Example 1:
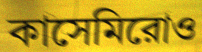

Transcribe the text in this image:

কাসেমিরোও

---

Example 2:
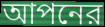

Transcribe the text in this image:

আপনের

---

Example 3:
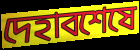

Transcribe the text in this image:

দেহাবশেষে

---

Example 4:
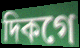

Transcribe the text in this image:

দিকগে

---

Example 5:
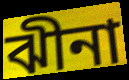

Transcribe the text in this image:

ঝীনা